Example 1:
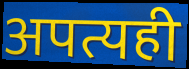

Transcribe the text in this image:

अपत्यही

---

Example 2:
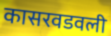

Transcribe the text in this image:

कासरवडवली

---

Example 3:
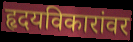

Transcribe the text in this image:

हृदयविकारांवर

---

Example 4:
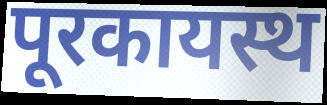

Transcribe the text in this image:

पूरकायस्थ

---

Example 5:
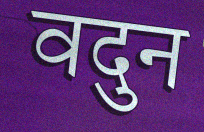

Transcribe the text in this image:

वदुन